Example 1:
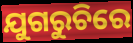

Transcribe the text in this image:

ଯୁଗରୁଚିରେ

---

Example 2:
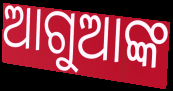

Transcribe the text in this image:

ଆଗୁଆଙ୍କ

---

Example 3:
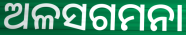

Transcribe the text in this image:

ଅଳସଗମନା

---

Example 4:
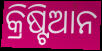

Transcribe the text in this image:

କ୍ରିଷ୍ଟିଆନ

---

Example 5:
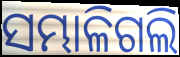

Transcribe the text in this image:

ସମ୍ଭାଳିଗଲି